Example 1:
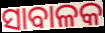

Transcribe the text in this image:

ସାବାଳକ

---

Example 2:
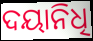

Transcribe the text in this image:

ଦୟାନିଧି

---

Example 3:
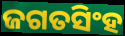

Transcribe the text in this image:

ଜଗତସିଂହ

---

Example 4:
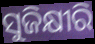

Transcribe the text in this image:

ସୁଜିକ୍ଷୀରି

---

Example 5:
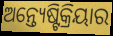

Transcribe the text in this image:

ଅନ୍ତ୍ୟେଷ୍ଟିକ୍ରିୟାର